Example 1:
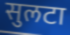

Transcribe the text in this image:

सुलटा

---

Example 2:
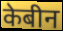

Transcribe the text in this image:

केबीन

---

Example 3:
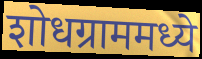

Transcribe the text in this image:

शोधग्राममध्ये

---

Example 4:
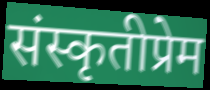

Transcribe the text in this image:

संस्कृतीप्रेम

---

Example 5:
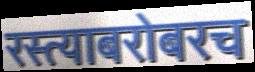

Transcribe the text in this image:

रस्त्याबरोबरच